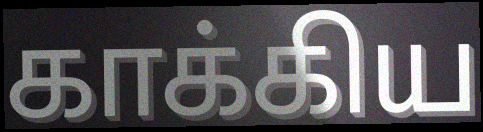
காக்கிய